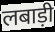
लबाड़ी